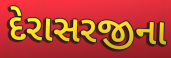
દેરાસરજીના